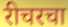
रीचरचा